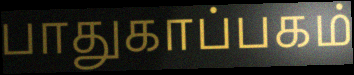
பாதுகாப்பகம்